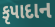
કૃપાદાન